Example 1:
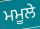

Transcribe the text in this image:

ਮਮੂਲੇ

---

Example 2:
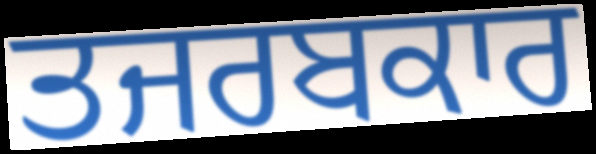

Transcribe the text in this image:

ਤਜਰਬਕਾਰ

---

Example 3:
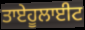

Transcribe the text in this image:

ਤਾਏਹੂਲਾਈਟ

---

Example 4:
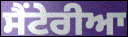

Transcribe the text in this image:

ਸੈਂਟੇਰੀਆ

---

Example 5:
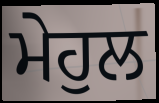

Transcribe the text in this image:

ਮੇਹੁਲ